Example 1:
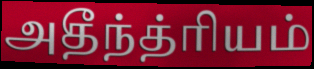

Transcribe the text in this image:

அதீந்த்ரியம்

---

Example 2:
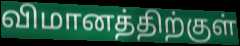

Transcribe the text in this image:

விமானத்திற்குள்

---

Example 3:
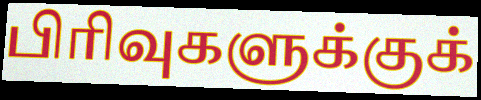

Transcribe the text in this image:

பிரிவுகளுக்குக்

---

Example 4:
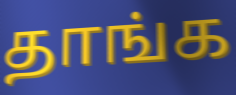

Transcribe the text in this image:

தாங்க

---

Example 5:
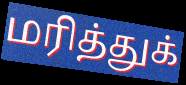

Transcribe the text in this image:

மரித்துக்